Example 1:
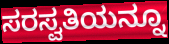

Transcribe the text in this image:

ಸರಸ್ವತಿಯನ್ನೂ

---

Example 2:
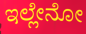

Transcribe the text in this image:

ಇಲ್ಲೇನೋ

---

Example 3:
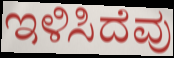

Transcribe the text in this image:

ಇಳಿಸಿದೆವು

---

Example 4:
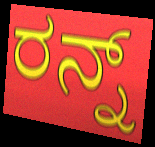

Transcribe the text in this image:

ರನ್ನ್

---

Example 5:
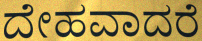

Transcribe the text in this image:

ದೇಹವಾದರೆ